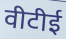
वीटीई